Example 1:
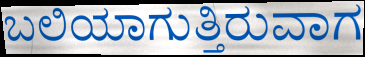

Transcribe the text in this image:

ಬಲಿಯಾಗುತ್ತಿರುವಾಗ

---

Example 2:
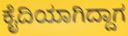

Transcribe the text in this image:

ಕೈದಿಯಾಗಿದ್ದಾಗ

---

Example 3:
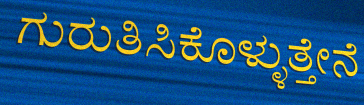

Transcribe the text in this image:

ಗುರುತಿಸಿಕೊಳ್ಳುತ್ತೇನೆ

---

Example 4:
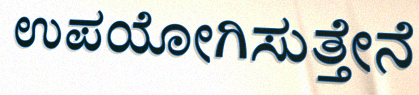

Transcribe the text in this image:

ಉಪಯೋಗಿಸುತ್ತೇನೆ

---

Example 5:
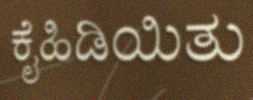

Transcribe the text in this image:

ಕೈಹಿಡಿಯಿತು